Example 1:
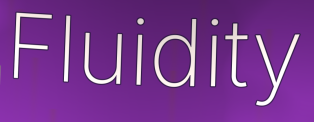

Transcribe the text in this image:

Fluidity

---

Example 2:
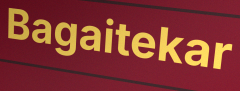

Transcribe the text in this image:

Bagaitekar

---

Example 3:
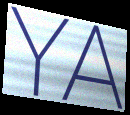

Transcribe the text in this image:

YA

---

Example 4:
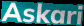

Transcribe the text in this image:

Askari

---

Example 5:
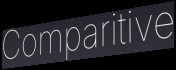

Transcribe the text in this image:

Comparitive